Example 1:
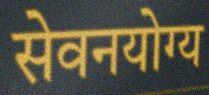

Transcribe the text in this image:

सेवनयोग्य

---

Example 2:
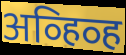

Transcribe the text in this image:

अव्हिव्ह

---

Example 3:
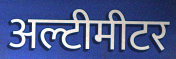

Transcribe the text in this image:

अल्टीमीटर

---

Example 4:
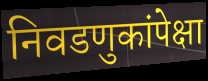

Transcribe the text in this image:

निवडणुकांपेक्षा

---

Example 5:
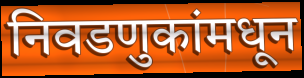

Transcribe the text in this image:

निवडणुकांमधून